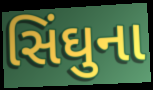
સિંઘુના